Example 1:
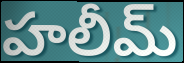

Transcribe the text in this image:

హలీమ్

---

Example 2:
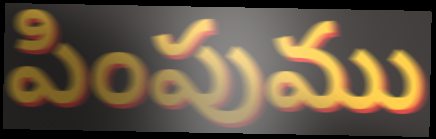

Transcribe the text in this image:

పింపుము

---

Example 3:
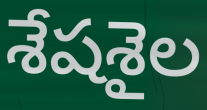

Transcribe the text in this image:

శేషశైల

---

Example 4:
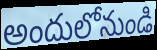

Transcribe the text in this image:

అందులోనుండి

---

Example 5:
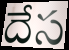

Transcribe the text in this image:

దేస